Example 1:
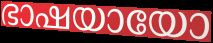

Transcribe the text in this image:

ഭാഷയായോ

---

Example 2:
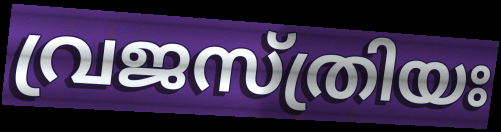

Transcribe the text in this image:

വ്രജസ്ത്രിയഃ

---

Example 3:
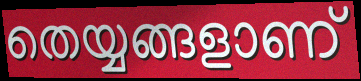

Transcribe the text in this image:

തെയ്യങ്ങളാണ്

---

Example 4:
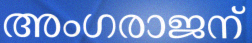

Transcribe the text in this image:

അംഗരാജന്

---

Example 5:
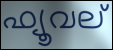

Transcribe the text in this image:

ഫ്യൂവല്